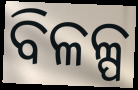
ବିଳଳ୍ପ